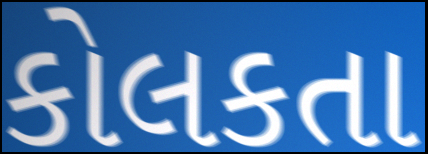
કોલકતા